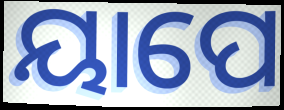
ୟାପେ